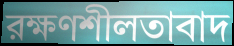
রক্ষণশীলতাবাদ